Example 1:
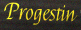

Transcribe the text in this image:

Progestin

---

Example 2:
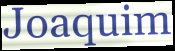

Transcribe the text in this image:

Joaquim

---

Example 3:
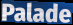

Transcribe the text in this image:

Palade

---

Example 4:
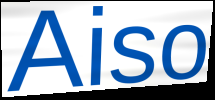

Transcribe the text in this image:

Aiso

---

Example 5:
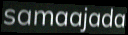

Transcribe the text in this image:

samaajada